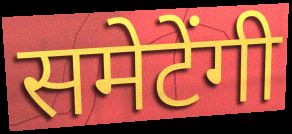
समेटेंगी